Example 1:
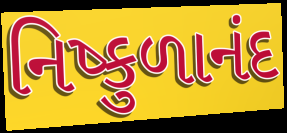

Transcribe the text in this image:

નિષ્કુળાનંદ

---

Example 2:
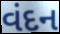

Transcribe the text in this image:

વંદન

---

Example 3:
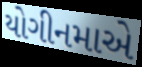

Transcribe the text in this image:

યોગીનમાએ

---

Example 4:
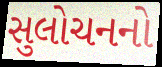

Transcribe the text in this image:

સુલોચનનો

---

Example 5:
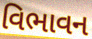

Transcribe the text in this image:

વિભાવન